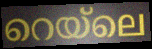
റെയ്ലെ